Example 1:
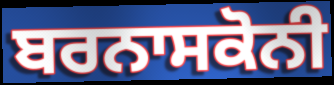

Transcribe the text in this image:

ਬਰਨਾਸਕੋਨੀ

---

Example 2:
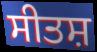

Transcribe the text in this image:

ਸੀਤਸ਼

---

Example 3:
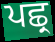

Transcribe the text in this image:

ਪਛ੍ਰ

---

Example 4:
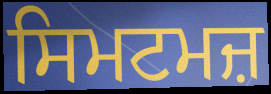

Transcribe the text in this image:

ਸਿਮਟਮਜ਼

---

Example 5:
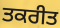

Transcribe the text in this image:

ਤਕਰੀਤ